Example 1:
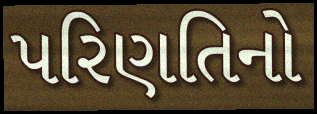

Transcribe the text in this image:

પરિણતિનો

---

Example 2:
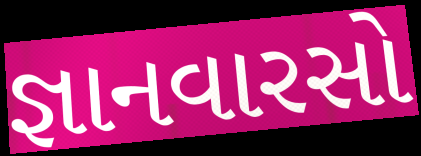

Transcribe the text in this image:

જ્ઞાનવારસો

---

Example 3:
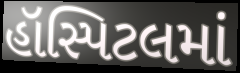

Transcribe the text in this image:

હૉસ્પિટલમાં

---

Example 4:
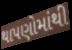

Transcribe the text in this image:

થાપણોમાંથી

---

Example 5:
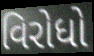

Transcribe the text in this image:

વિરોધો